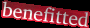
benefitted